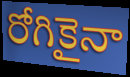
రోగికైనా